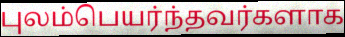
புலம்பெயர்ந்தவர்களாக